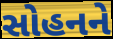
સોહનને